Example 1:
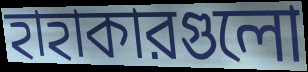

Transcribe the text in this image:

হাহাকারগুলো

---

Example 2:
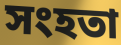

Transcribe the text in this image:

সংহতা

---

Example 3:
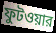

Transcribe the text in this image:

ফুটওয়ার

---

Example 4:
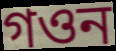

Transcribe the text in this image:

গওন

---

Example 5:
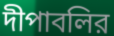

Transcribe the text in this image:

দীপাবলির